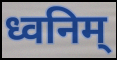
ध्वनिम्